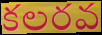
కలరవ